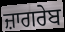
ਜ਼ਾਗਰੇਬ